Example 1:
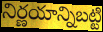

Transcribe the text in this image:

నిర్ణయాన్నిబట్టి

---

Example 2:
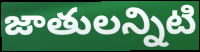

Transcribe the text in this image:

జాతులన్నిటి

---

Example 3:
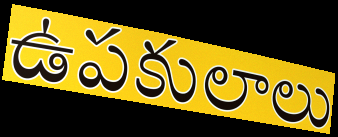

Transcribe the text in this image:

ఉపకులాలు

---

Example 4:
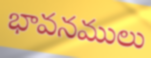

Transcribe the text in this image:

భావనములు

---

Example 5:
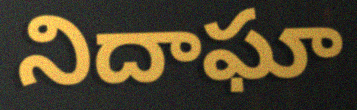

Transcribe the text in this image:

నిదాఘా